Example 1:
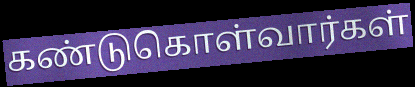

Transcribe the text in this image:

கண்டுகொள்வார்கள்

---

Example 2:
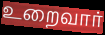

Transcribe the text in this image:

உறைவார்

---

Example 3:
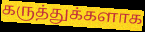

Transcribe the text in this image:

கருத்துக்களாக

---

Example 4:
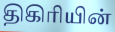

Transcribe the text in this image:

திகிரியின்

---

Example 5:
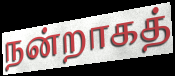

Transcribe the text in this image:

நன்றாகத்